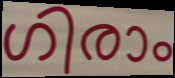
ഗിരാം